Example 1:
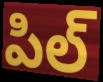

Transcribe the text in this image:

పిల్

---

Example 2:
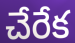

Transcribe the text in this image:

చేరేక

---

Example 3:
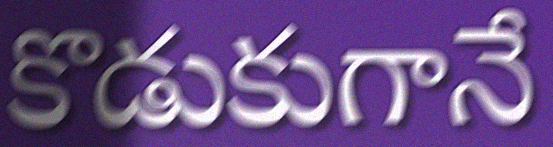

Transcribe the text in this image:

కొడుకుగానే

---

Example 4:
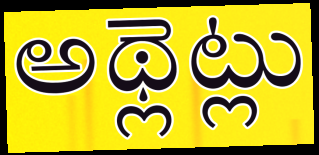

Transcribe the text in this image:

అథ్లెట్లు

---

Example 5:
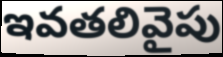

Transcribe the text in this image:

ఇవతలివైపు